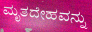
ಮೃತದೇಹವನ್ನು